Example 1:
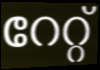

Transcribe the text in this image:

റേറ്റ്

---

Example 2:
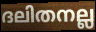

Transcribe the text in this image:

ദലിതനല്ല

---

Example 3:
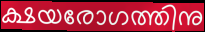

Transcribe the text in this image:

ക്ഷയരോഗത്തിനു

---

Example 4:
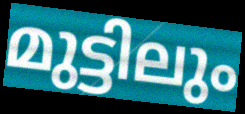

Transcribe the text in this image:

മുട്ടിലും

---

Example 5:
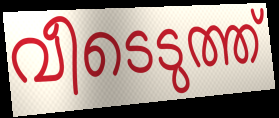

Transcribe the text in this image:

വീടെടുത്ത്